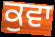
ਕੁਵਾ